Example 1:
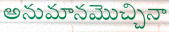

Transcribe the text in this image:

అనుమానమొచ్చినా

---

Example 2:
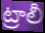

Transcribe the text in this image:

ట్రాలీ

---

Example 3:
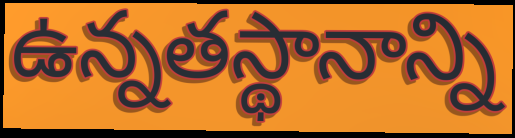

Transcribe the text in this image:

ఉన్నతస్థానాన్ని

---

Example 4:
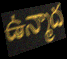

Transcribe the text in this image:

ఉన్మాద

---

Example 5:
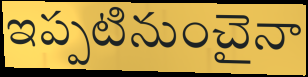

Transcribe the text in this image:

ఇప్పటినుంచైనా